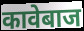
कावेबाज